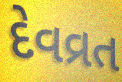
દેવવ્રત